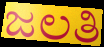
ಜಲತಿ